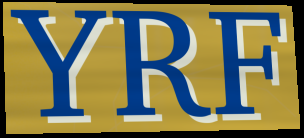
YRF